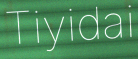
Tiyidai